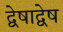
द्वेषाद्वेष